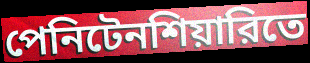
পেনিটেনশিয়ারিতে